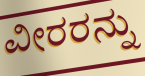
ವೀರರನ್ನು